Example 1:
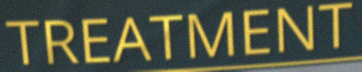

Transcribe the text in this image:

TREATMENT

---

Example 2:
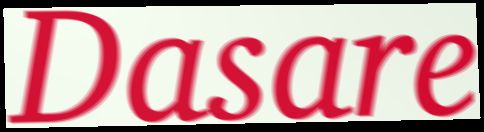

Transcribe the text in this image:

Dasare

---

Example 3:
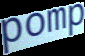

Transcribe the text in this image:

pomp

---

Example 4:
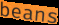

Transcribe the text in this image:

beans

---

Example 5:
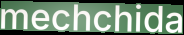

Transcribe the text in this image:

mechchida